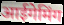
आईगेमिंग